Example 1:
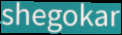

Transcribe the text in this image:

shegokar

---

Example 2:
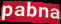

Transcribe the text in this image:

pabna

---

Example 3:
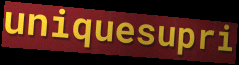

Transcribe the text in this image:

uniquesupri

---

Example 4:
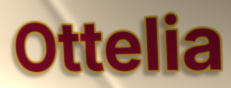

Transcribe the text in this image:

Ottelia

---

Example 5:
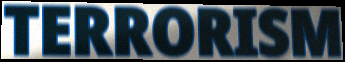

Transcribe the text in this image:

TERRORISM